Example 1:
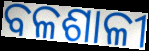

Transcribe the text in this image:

ବଳଶାଳୀ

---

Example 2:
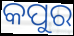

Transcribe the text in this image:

କପୁର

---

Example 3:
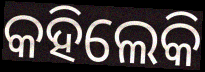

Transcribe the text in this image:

କହିଲେକି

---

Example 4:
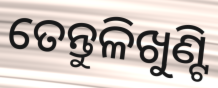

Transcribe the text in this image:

ତେନ୍ତୁଳିଖୁଣ୍ଟି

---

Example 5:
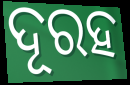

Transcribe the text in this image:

ଦୂରହ